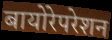
बायोरेपरेशन